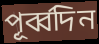
পূর্ব্বদিন